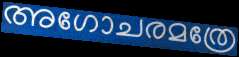
അഗോചരമത്രേ